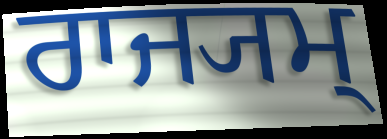
ਰਾਜ੍ਯਮ੍